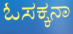
ಓಸಕ್ಕನಾ